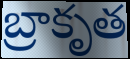
బ్రాకృత